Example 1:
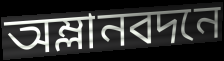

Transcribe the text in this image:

অম্লানবদনে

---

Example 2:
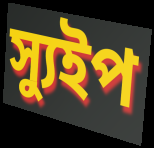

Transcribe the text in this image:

স্যুইপ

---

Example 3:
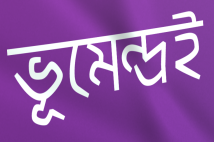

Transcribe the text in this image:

ভূমেন্দ্রই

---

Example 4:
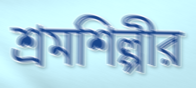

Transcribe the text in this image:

শ্রমশিল্পীর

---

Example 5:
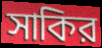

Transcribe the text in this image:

সাকির